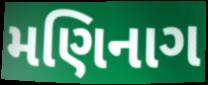
મણિનાગ